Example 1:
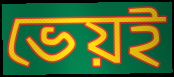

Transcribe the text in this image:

ভেয়ই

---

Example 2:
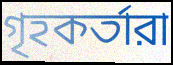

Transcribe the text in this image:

গৃহকর্তারা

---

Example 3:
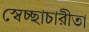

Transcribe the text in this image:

স্বেচ্ছাচারীতা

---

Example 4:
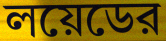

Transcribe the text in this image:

লয়েডের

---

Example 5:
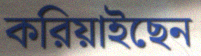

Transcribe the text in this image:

করিয়াইছেন